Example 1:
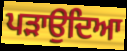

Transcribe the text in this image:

ਪੜਾਉਦਿਆ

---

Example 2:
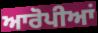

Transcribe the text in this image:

ਆਰੋਪੀਆਂ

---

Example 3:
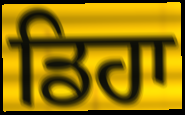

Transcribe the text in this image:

ਡਿਹਾ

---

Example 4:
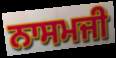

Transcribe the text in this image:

ਨਾਸਮਜੀ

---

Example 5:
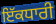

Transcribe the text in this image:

ਇੱਕਧਾਰੀ